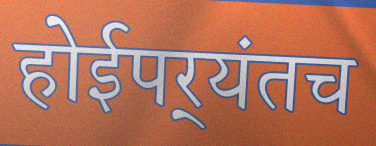
होईपर्यंतच